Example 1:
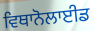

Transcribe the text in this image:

ਵਿਥਾਨੋਲਾਈਡ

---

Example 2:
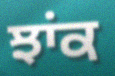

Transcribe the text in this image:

ਝਾਂਕ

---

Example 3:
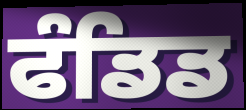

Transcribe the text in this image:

ਫੰਡਿਡ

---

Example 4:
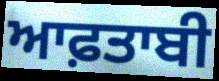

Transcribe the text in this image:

ਆਫ਼ਤਾਬੀ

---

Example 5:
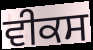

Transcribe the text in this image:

ਵੀਕਸ